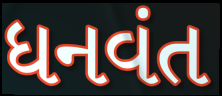
ધનવંત